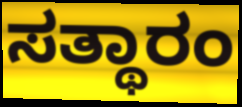
ಸತ್ಥಾರಂ